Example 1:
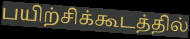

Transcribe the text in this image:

பயிற்சிக்கூடத்தில்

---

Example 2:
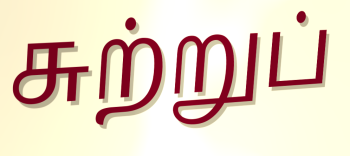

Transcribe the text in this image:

சுற்றுப்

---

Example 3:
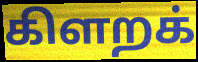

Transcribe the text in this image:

கிளறக்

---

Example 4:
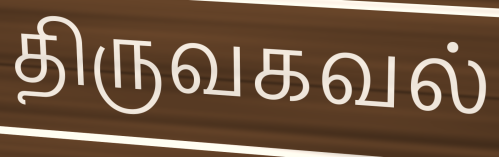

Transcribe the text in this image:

திருவகவல்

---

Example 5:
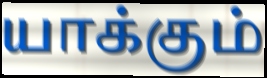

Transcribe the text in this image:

யாக்கும்